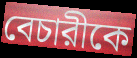
বেচারীকে